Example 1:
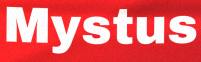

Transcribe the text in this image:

Mystus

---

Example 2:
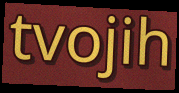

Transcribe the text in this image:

tvojih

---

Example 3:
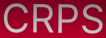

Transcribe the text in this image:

CRPS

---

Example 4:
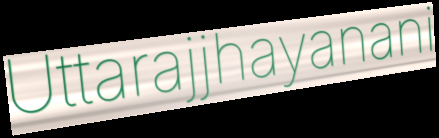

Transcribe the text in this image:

Uttarajjhayanani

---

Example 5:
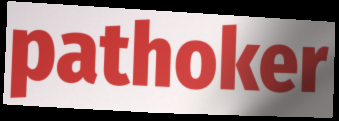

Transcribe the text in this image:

pathoker